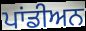
ਪਾਂਡੀਅਨ